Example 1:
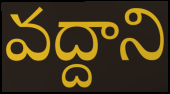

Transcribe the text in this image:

వద్దాని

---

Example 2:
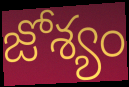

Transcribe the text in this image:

జోశ్యం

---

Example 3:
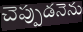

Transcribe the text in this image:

చెప్పుడనెను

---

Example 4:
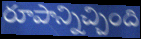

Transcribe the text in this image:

రూపాన్నిచ్చింది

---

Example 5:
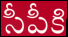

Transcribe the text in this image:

సీపీకి